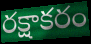
రక్షాకరం